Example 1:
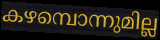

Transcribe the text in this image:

കഴമ്പൊന്നുമില്ല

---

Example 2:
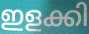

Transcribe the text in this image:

ഇളക്കി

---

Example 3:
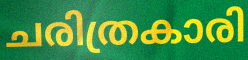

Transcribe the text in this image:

ചരിത്രകാരി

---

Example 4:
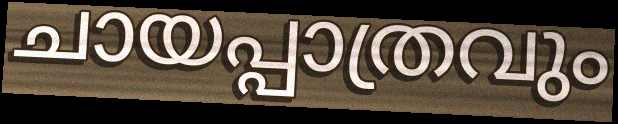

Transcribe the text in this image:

ചായപ്പാത്രവും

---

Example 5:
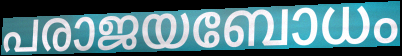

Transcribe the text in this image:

പരാജയബോധം